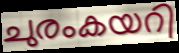
ചുരംകയറി